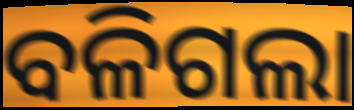
ବଳିଗଲା